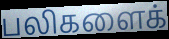
பலிகளைக்